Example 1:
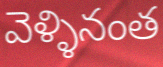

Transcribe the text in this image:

వెళ్ళినంత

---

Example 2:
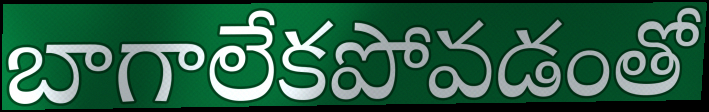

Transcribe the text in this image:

బాగాలేకపోవడంతో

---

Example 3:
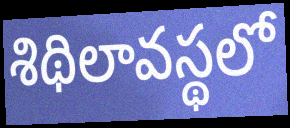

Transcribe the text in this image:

శిథిలావస్థలో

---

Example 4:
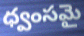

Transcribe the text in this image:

ధ్వంసమై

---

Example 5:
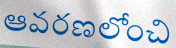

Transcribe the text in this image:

ఆవరణలోంచి